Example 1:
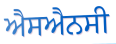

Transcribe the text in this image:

ਐਸਐਨਸੀ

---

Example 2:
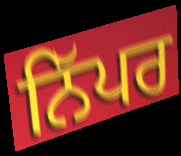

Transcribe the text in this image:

ਨਿੱਪਰ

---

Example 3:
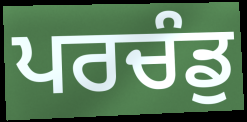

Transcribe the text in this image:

ਪਰਚੰਡੁ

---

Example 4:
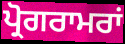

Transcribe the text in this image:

ਪ੍ਰੋਗਰਾਮਰਾਂ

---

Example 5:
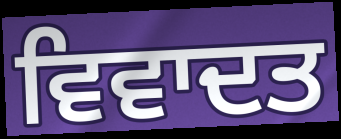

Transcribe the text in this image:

ਵਿਵਾਦਤ